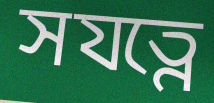
সযত্নে